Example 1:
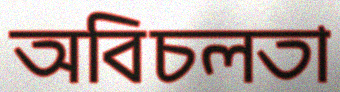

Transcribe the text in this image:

অবিচলতা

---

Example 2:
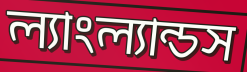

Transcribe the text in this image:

ল্যাংল্যান্ডস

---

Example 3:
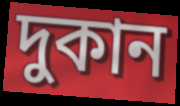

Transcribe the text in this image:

দুকান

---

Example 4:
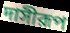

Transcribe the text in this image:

দাসীরূপ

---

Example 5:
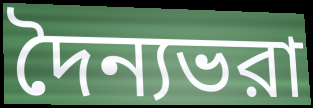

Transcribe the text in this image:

দৈন্যভরা